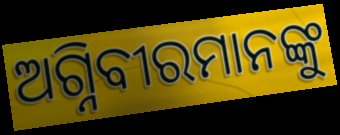
ଅଗ୍ନିବୀରମାନଙ୍କୁ